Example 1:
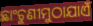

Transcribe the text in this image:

ଛାଂଚୁଣୀମୁଠାଯାଏଁ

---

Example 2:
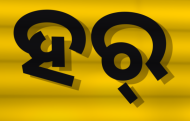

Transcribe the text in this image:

ହର୍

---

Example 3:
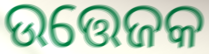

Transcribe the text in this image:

ଉତ୍ତେଜକ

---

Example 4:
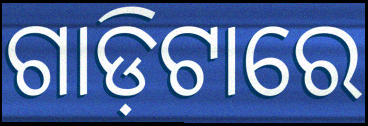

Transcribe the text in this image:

ଗାଡ଼ିଟାରେ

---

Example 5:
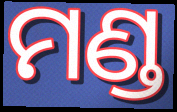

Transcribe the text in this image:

ମଣ୍ଡ